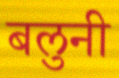
बलुनी